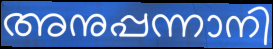
അനുപ്പന്നാനി